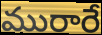
మురారే